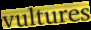
vultures